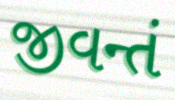
જીવન્તં